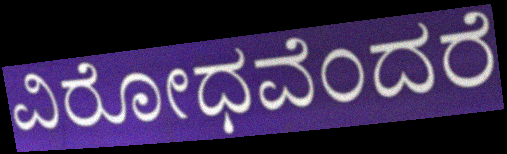
ವಿರೋಧವೆಂದರೆ